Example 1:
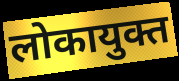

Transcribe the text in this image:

लोकायुक्त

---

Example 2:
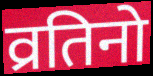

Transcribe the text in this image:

व्रतिनो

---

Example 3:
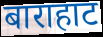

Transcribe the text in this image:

बाराहाट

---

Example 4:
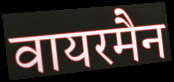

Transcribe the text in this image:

वायरमैन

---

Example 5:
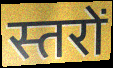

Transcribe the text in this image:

स्तरों